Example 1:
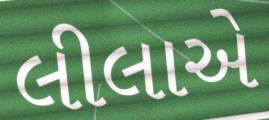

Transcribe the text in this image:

લીલાએ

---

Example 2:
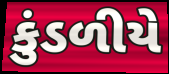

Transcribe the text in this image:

કુંડળીયે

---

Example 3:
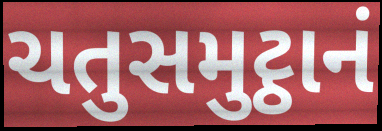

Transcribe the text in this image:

ચતુસમુટ્ઠાનં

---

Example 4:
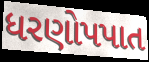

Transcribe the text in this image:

ધરણોપપાત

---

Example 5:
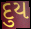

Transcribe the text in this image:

દુય